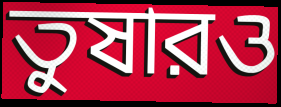
তুষারও